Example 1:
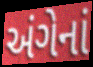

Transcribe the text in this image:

અંગેનાં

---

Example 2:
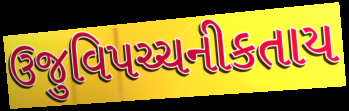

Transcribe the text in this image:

ઉજુવિપચ્ચનીકતાય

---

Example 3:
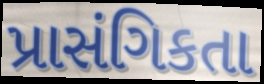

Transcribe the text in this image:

પ્રાસંગિકતા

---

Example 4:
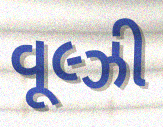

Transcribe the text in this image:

વૂલ્ઝી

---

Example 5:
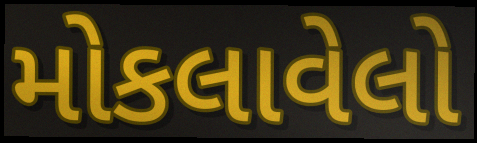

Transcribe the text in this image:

મોકલાવેલો